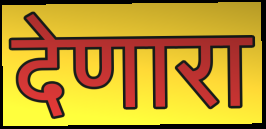
देणारा